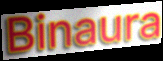
Binaura